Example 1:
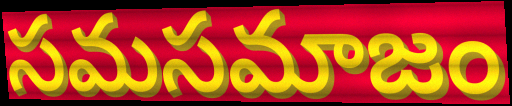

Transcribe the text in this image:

సమసమాజం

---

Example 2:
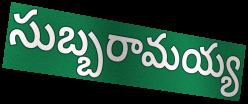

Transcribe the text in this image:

సుబ్బరామయ్య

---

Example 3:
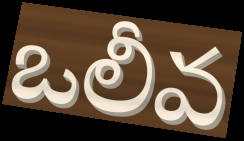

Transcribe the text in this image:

ఒలీవ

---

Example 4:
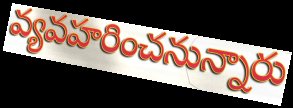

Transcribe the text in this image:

వ్యవహరించనున్నారు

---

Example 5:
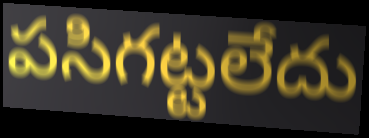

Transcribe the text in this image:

పసిగట్టలేదు